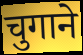
चुगाने